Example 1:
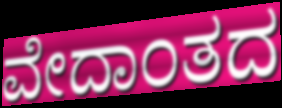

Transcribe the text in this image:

ವೇದಾಂತದ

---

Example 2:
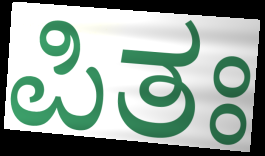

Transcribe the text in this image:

ಪಿತಃ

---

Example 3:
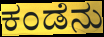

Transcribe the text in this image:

ಕಂಡೆನು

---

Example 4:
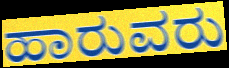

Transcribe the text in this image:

ಹಾರುವರು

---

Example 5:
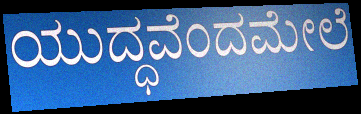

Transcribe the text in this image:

ಯುದ್ಧವೆಂದಮೇಲೆ